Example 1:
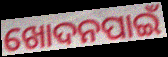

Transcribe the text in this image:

ଖୋଦନପାଇଁ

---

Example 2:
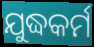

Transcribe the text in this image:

ଯୁଦ୍ଧକର୍ମ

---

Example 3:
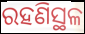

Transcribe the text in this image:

ରହଣିସ୍ଥଳ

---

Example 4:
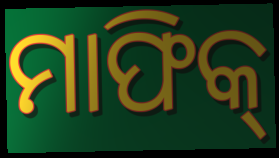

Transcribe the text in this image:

ମାଫିକ୍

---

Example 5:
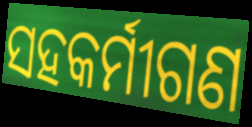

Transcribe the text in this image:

ସହକର୍ମୀଗଣ